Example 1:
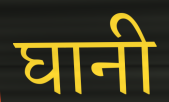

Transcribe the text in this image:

घानी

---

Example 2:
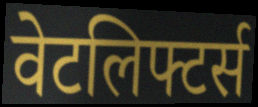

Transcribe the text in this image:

वेटलिफ्टर्स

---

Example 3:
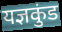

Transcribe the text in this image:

यज्ञकुंड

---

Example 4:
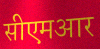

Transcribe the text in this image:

सीएमआर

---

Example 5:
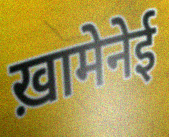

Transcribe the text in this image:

ख़ामेनेई